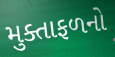
મુક્તાફળનો